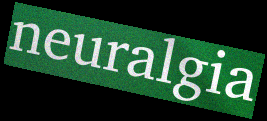
neuralgia